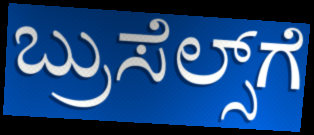
ಬ್ರುಸೆಲ್ಸ್‌ಗೆ